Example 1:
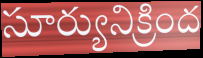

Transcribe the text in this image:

సూర్యునిక్రింద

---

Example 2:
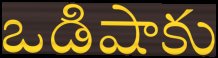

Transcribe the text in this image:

ఒడిషాకు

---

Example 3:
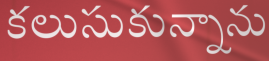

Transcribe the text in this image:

కలుసుకున్నాను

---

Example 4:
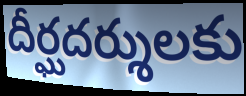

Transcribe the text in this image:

దీర్ఘదర్శులకు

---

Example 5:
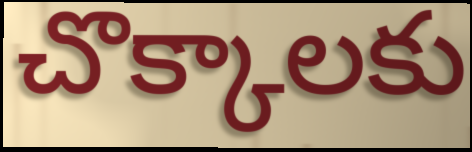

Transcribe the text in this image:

చొక్కాలకు